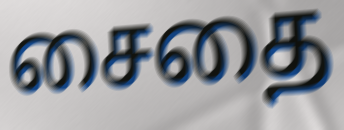
சைதை